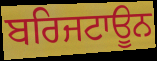
ਬਰਿਜਟਾਊਨ